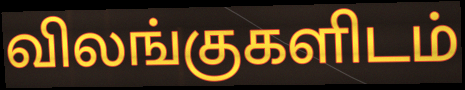
விலங்குகளிடம்